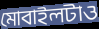
মোবাইলটাও